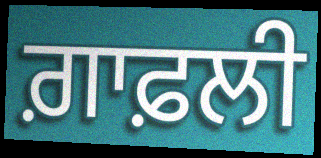
ਗ਼ਾਫ਼ਲੀ